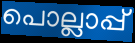
പൊല്ലാപ്പ്